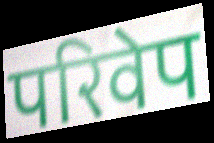
परिवेप